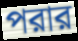
পরার